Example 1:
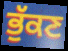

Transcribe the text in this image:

ਭੁੱਕਣ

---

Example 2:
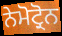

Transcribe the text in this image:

ਨੇਮੋਟ੍ਰੋਨ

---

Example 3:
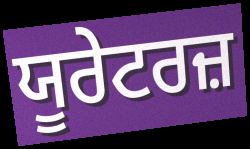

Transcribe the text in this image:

ਯੂਰੇਟਰਜ਼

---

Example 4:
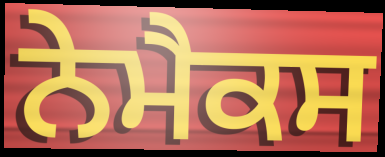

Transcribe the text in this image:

ਨੇਮੈਕਸ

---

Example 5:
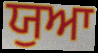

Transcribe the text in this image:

ਯੁਆ